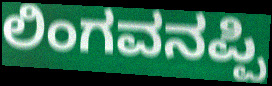
ಲಿಂಗವನಪ್ಪಿ